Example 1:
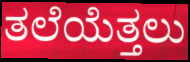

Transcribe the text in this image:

ತಲೆಯೆತ್ತಲು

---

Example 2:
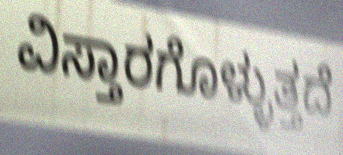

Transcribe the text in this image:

ವಿಸ್ತಾರಗೊಳ್ಳುತ್ತದೆ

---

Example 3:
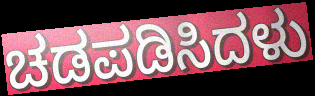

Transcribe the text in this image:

ಚಡಪಡಿಸಿದಳು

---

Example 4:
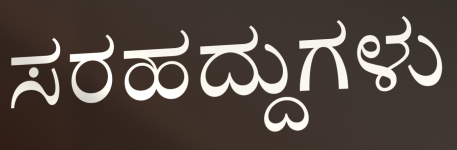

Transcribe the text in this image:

ಸರಹದ್ದುಗಳು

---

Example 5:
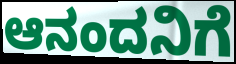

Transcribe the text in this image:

ಆನಂದನಿಗೆ